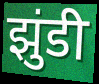
झुंडी